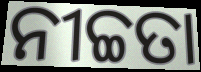
ନୀଚ୍ଚତା